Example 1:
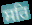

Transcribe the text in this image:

ਸਰਿ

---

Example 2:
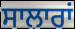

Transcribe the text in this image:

ਸਾਲਾਰਾਂ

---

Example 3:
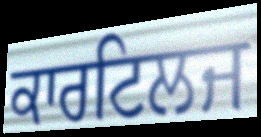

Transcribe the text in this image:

ਕਾਰਟਿਲਜ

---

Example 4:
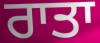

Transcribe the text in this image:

ਰਾਤਾ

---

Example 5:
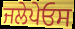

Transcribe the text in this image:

ਜਲੇਪੇਓਸ